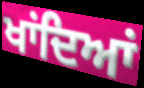
ਖਾਂਦਿਆਂ